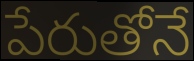
పేరుతోనే